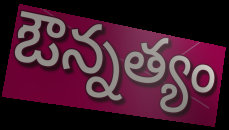
ఔన్నత్యం